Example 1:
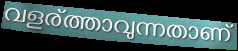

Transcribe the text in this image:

വളര്ത്താവുന്നതാണ്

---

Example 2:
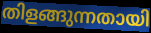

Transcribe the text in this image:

തിളങ്ങുന്നതായി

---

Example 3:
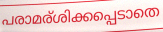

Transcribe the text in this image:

പരാമര്ശിക്കപ്പെടാതെ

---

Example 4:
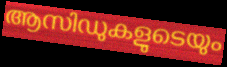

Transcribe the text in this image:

ആസിഡുകളുടെയും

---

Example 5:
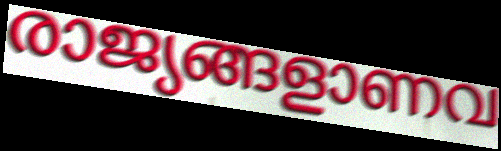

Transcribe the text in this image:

രാജ്യങ്ങളാണവ